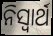
ନିସ୍ୱାର୍ଥ